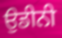
ਉਡੀਨੀ